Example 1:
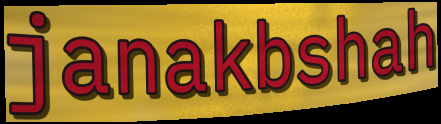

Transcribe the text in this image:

janakbshah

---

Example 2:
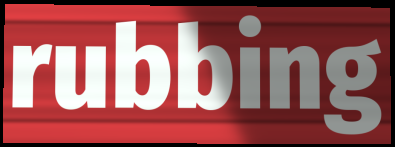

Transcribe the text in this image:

rubbing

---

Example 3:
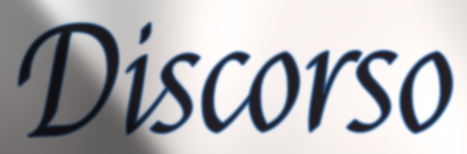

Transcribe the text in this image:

Discorso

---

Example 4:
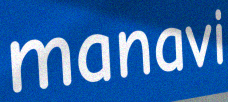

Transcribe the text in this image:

manavi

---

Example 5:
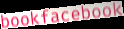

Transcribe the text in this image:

bookfacebook